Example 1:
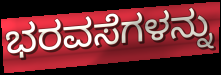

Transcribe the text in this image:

ಭರವಸೆಗಳನ್ನು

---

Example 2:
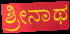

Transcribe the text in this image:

ಶ್ರೀನಾಥ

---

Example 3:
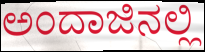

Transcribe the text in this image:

ಅಂದಾಜಿನಲ್ಲಿ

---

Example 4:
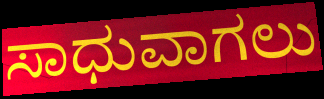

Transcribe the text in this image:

ಸಾಧುವಾಗಲು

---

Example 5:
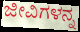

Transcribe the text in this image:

ಜೀವಿಗಳನ್ನ